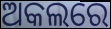
ଅକଲରେ